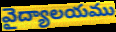
వైద్యాలయము